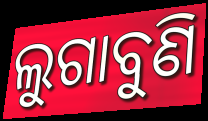
ଲୁଗାବୁଣି